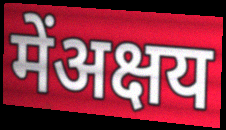
मेंअक्षय